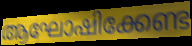
ആഘോഷിക്കേണ്ട